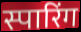
स्पारिंग